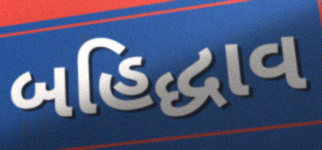
બહિદ્ધાવ